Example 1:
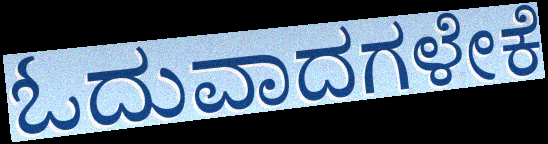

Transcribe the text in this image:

ಓದುವಾದಗಳೇಕೆ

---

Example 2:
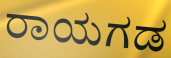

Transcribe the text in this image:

ರಾಯಗಡ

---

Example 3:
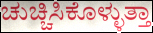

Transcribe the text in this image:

ಚುಚ್ಚಿಸಿಕೊಳ್ಳುತ್ತಾ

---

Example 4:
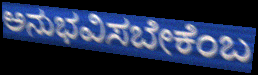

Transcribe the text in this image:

ಅನುಭವಿಸಬೇಕೆಂಬ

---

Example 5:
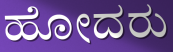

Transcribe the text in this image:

ಹೋದರು